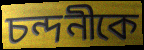
চন্দনীকে